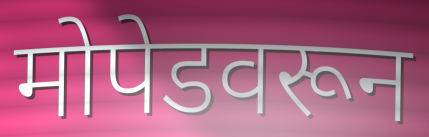
मोपेडवरून